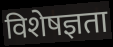
विशेषज्ञता